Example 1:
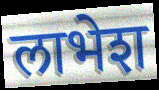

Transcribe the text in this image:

लाभेश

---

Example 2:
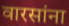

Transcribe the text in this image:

वारसांना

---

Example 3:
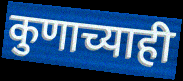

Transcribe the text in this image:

कुणाच्याही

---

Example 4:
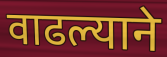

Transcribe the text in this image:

वाढल्याने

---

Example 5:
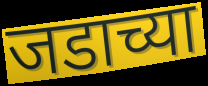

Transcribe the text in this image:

जडाच्या